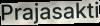
Prajasakti